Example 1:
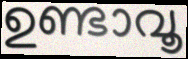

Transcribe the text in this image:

ഉണ്ടാവൂ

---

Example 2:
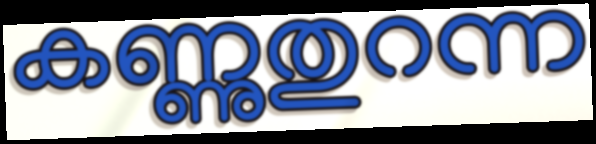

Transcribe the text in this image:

കണ്ണുതുറന്ന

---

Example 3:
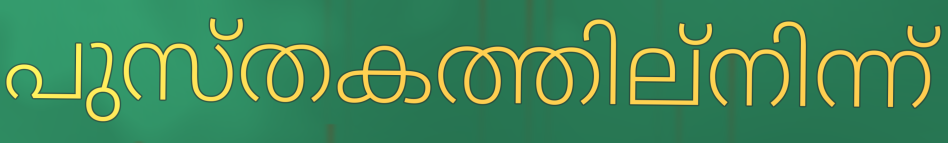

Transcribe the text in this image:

പുസ്തകത്തില്നിന്ന്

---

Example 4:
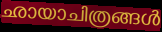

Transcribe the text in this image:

ഛായാചിത്രങ്ങൾ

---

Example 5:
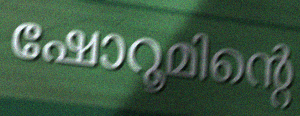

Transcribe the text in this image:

ഷോറൂമിന്റെ